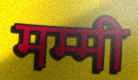
मम्मी